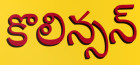
కొలిన్సన్